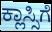
ಕ್ಲಾಸ್ಸಿಗೆ